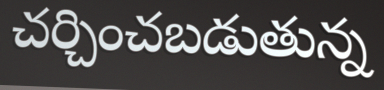
చర్చించబడుతున్న